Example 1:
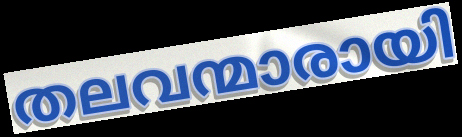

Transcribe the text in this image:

തലവന്മാരായി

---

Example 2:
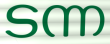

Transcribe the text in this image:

ടന്ന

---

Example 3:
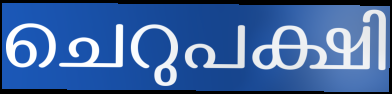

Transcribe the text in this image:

ചെറുപക്ഷി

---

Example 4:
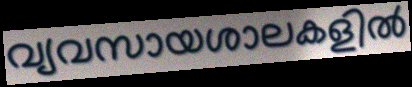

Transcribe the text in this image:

വ്യവസായശാലകളിൽ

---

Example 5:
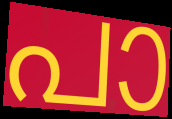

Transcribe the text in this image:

പാ